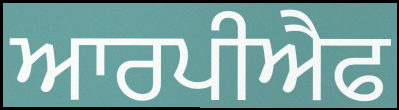
ਆਰਪੀਐਫ